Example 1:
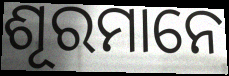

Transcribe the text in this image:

ଶୂରମାନେ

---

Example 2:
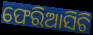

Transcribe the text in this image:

ଫେରିଆସିଚି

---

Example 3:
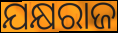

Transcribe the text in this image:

ଯକ୍ଷରାଜ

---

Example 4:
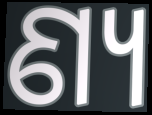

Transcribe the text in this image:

ଣ୍ଯ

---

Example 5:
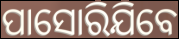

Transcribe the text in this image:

ପାସୋରିଯିବେ